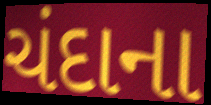
ચંદાના